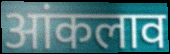
आंकलाव